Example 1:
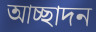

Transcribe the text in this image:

আচ্ছাদন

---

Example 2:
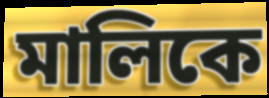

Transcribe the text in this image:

মালিকে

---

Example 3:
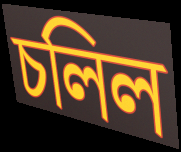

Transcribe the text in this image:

চলিল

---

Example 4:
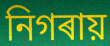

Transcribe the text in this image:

নিগৰায়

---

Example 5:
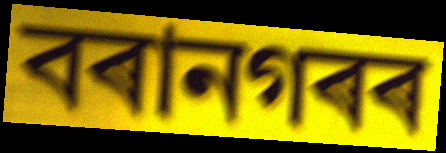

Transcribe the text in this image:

বৰানগৰৰ